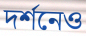
দর্শনেও